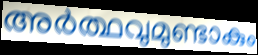
അർത്ഥവുമുണ്ടാകും